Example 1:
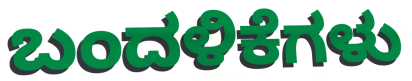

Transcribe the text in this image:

ಬಂದಳಿಕೆಗಳು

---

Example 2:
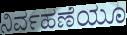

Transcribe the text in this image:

ನಿರ್ವಹಣೆಯೂ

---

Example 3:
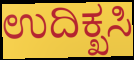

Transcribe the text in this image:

ಉದಿಕ್ಖಸಿ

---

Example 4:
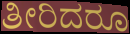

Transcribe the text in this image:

ತೀರಿದರೂ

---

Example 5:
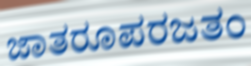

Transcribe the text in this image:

ಜಾತರೂಪರಜತಂ